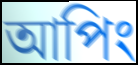
আপিং